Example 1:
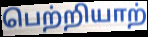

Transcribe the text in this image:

பெற்றியாற்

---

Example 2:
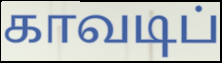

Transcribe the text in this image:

காவடிப்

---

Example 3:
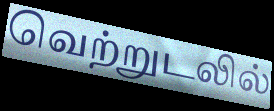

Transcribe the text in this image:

வெற்றுடலில்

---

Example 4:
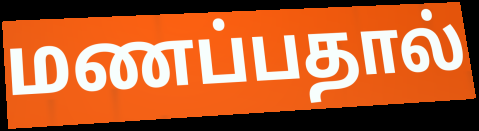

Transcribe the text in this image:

மணப்பதால்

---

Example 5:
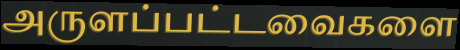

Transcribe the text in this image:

அருளப்பட்டவைகளை